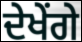
ਦੇਖੇਂਗੇ